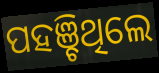
ପହଞ୍ଚିଥିଲେ